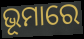
ଭୂମାରେ